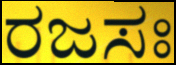
ರಜಸಃ